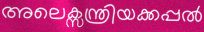
അലെക്സന്ത്രിയക്കപ്പൽ